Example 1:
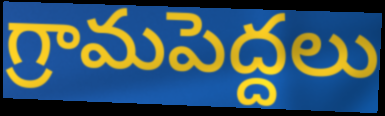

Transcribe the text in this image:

గ్రామపెద్దలు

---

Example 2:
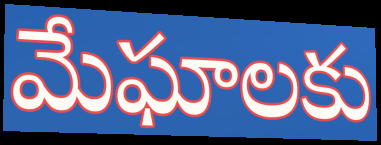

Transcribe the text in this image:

మేఘాలకు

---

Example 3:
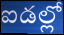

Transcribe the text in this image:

ఐడల్లో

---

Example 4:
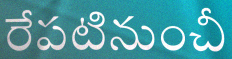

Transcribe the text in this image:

రేపటినుంచీ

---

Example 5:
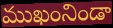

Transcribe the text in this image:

ముఖంనిండా